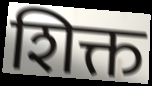
शिक्त